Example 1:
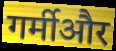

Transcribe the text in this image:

गर्मीऔर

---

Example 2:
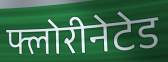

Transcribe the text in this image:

फ्लोरीनेटेड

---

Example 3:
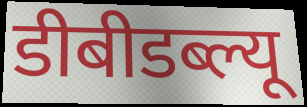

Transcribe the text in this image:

डीबीडब्ल्यू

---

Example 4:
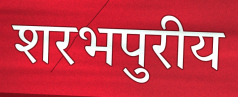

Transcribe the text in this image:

शरभपुरीय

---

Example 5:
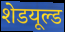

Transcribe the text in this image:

शेडयूल्ड